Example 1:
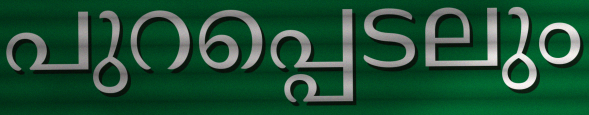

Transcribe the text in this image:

പുറപ്പെടലും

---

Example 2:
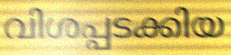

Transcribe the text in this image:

വിശപ്പടക്കിയ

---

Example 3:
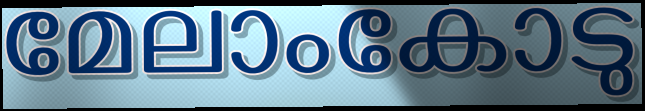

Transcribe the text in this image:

മേലാംകോടു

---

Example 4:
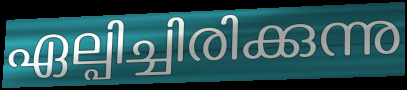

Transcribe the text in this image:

ഏല്പിച്ചിരിക്കുന്നു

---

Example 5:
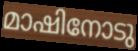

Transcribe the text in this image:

മാഷിനോടു